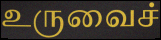
உருவைச்